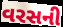
વરસની